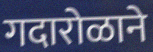
गदारोळाने